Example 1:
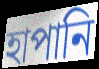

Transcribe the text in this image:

হাপানি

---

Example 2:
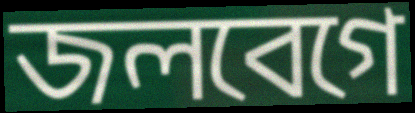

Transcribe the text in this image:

জলবেগে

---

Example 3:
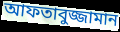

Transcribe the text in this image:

আফতাবুজ্জামান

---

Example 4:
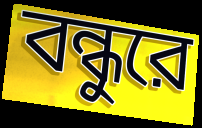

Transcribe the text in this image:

বন্ধুরে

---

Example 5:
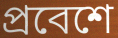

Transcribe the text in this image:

প্রবেশে